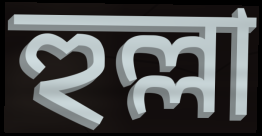
হুল্লা